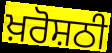
ਖ਼ਰੋਸ਼ਠੀ